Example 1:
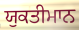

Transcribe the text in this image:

ਯੁਕਤੀਮਾਨ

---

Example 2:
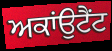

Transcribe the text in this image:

ਅਕਾਂਉਟੈਂਟ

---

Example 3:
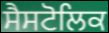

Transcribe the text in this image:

ਸੈਸਟੋਲਿਕ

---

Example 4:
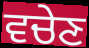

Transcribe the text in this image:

ਵਚੇਣ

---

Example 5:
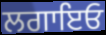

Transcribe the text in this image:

ਲਗਾਇਓ